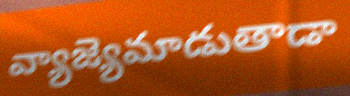
వ్యాజ్యెమాడుతాడా